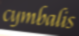
cymbalis